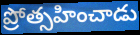
ప్రోత్సహించాడు